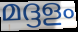
മദ്ദളം